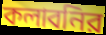
কলাবনির